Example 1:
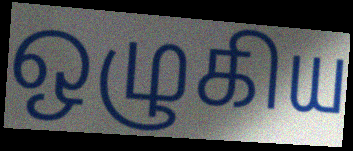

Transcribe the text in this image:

ஒழுகிய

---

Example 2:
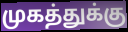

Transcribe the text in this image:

முகத்துக்கு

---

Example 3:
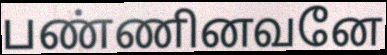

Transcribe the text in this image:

பண்ணினவனே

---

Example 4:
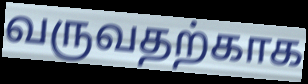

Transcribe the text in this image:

வருவதற்காக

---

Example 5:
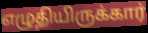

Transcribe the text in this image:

எழுதியிருக்கார்